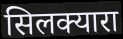
सिलक्यारा